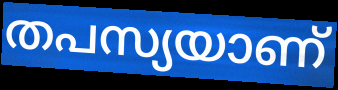
തപസ്യയാണ്